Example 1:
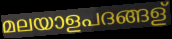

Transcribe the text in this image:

മലയാളപദങ്ങള്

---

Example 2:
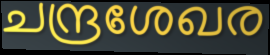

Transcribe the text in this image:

ചന്ദ്രശേഖര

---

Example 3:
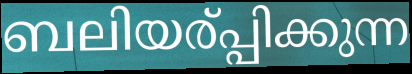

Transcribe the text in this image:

ബലിയര്പ്പിക്കുന്ന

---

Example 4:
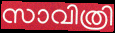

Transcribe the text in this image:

സാവിത്രി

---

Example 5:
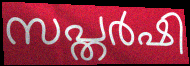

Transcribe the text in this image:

സപ്തർഷി